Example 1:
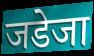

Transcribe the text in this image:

जडेजा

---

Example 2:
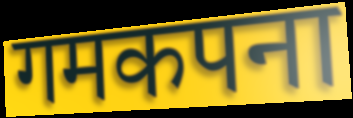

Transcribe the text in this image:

गमकपना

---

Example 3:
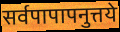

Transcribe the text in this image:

सर्वपापापनुत्तये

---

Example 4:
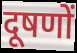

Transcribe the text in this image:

दूषणों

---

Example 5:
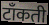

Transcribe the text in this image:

टाँकती